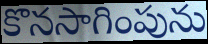
కొనసాగింపును